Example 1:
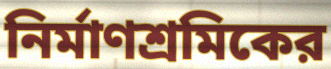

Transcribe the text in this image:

নির্মাণশ্রমিকের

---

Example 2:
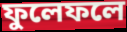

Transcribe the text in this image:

ফুলেফলে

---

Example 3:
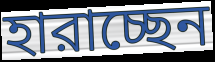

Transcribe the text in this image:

হারাচ্ছেন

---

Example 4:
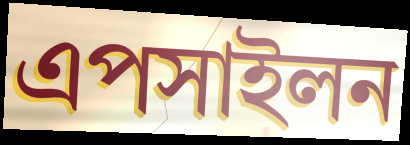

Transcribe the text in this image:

এপসাইলন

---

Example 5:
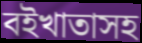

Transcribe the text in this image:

বইখাতাসহ